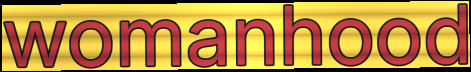
womanhood